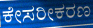
ಕೇಸರೀಕರಣ